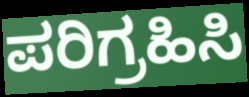
ಪರಿಗ್ರಹಿಸಿ